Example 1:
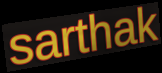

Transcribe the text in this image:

sarthak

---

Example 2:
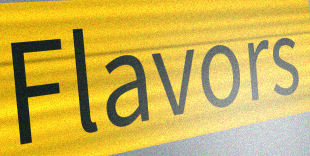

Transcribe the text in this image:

Flavors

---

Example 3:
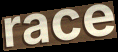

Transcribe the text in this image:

race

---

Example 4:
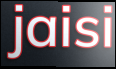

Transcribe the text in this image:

jaisi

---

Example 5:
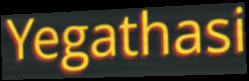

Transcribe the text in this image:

Yegathasi